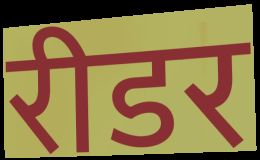
रीडर